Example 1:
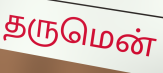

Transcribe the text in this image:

தருமென்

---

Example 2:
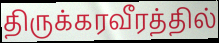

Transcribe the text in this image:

திருக்கரவீரத்தில்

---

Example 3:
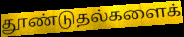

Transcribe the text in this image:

தூண்டுதல்களைக்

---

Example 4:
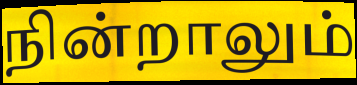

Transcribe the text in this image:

நின்றாலும்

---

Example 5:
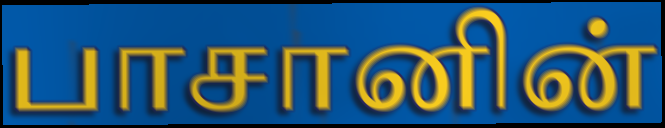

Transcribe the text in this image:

பாசானின்